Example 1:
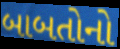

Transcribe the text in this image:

બાબતોનો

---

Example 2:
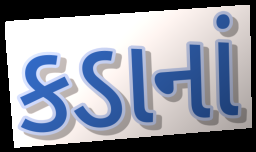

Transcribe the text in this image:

કડાનાં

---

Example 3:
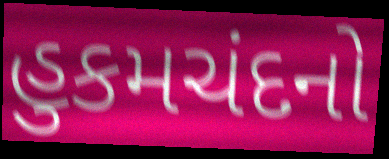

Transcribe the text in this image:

હુકમચંદનો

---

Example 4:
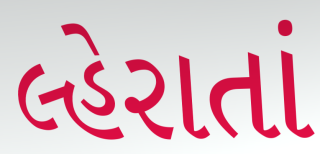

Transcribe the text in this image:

લ્હેરાતાં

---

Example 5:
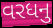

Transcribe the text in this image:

વરધનુ